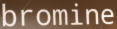
bromine